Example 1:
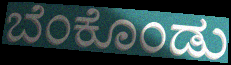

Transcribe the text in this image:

ಬೆಂಕೊಂಡು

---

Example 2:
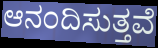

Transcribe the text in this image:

ಆನಂದಿಸುತ್ತವೆ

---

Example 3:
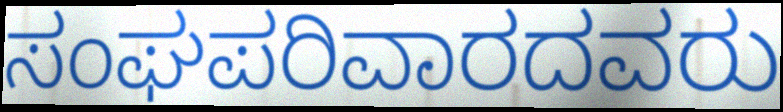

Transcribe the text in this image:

ಸಂಘಪರಿವಾರದವರು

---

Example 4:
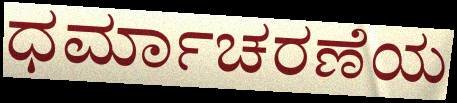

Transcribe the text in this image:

ಧರ್ಮಾಚರಣೆಯ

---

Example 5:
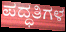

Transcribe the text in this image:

ಪದ್ಧತಿಗಳ